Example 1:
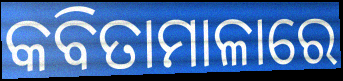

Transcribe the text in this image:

କବିତାମାଳାରେ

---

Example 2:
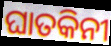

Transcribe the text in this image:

ଘାତକିନୀ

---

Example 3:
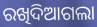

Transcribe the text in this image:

ରଖିଦିଆଗଲା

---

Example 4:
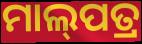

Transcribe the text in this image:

ମାଲ୍‌ପତ୍ର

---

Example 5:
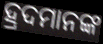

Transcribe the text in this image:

ହ୍ରଦମାନଙ୍କ